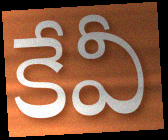
కేవీ